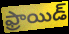
ఫ్రాయిడ్